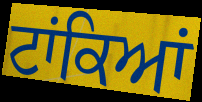
ਟਾਂਕਿਆਂ